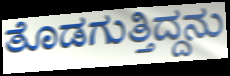
ತೊಡಗುತ್ತಿದ್ದನು